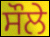
ਸੌਲੇ